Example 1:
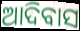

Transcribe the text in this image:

ଆଦିବାସ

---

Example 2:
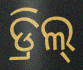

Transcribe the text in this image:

ଡ୍ରିଲ୍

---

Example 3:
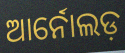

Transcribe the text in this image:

ଆର୍ନୋଲଡ଼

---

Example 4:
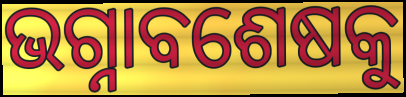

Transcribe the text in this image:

ଭଗ୍ନାବଶେଷକୁ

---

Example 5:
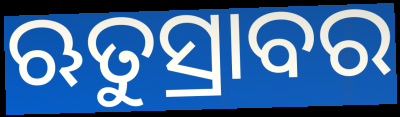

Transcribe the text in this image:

ଋତୁସ୍ରାବର